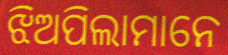
ଝିଅପିଲାମାନେ